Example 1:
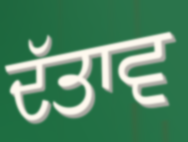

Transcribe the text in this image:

ਦੱਤਾਵ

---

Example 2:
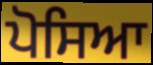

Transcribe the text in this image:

ਪੋਸਿਆ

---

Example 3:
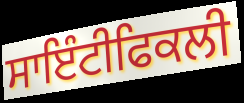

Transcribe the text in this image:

ਸਾਇੰਟੀਫਿਕਲੀ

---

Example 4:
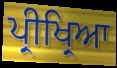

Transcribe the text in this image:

ਪ੍ਰੀਖ੍ਰਿਆ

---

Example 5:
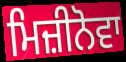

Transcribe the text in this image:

ਮਿਜ਼ੀਨੋਵਾ